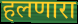
हलणारा